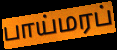
பாய்மரப்